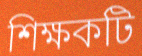
শিক্ষকটি